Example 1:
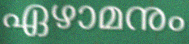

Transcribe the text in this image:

ഏഴാമനും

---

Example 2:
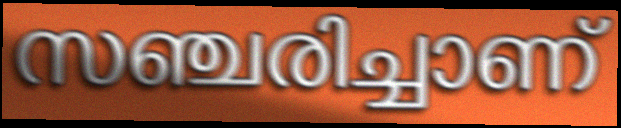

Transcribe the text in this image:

സഞ്ചരിച്ചാണ്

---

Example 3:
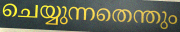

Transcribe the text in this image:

ചെയ്യുന്നതെന്തും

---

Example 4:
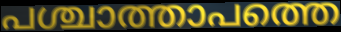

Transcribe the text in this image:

പശ്ചാത്താപത്തെ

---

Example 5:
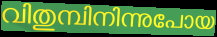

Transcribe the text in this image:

വിതുമ്പിനിന്നുപോയ